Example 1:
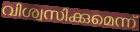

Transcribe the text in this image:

വിശ്വസിക്കുമെന്ന്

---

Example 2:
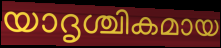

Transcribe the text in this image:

യാദൃശ്ചികമായ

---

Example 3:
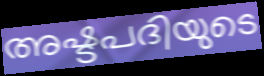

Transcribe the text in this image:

അഷ്ടപദിയുടെ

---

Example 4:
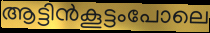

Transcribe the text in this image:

ആട്ടിൻകൂട്ടംപോലെ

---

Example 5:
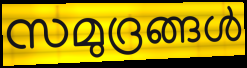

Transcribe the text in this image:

സമുദ്രങ്ങൾ